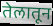
तेलातून